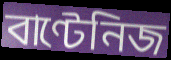
বাণ্টেনিজ